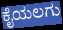
ಕೈಯಲಗು